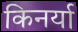
किनर्या